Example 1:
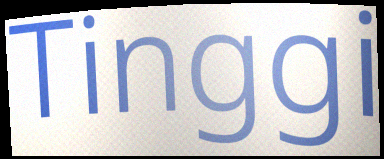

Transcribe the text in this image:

Tinggi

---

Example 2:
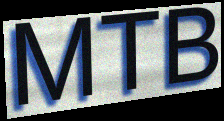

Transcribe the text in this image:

MTB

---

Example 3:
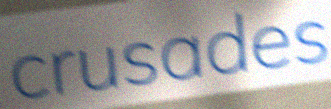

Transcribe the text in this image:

crusades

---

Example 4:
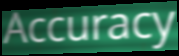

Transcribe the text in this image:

Accuracy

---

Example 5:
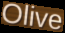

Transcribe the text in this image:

Olive